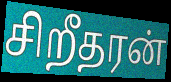
சிறீதரன்